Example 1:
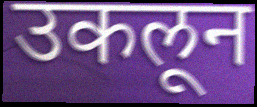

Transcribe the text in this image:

उकलून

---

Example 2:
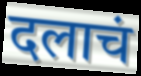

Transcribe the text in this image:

दलाचं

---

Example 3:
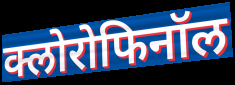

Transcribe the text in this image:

क्लोरोफिनॉल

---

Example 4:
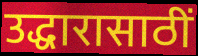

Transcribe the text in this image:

उद्धारासाठीं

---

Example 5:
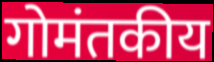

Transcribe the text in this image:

गोमंतकीय